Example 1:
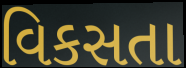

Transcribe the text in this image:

વિકસતા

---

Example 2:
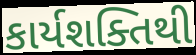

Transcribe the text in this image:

કાર્યશક્તિથી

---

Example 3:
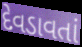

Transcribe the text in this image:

દેવડાવતાં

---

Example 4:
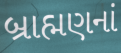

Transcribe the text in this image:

બ્રાહ્મણનાં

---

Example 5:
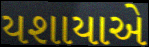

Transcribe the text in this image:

યશાયાએ